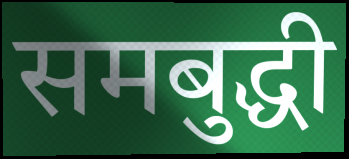
समबुद्धी